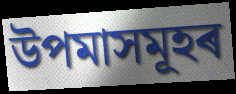
উপমাসমূহৰ